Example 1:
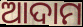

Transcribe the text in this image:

ଆଦାମ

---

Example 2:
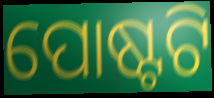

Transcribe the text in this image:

ପୋଷ୍ଟଟି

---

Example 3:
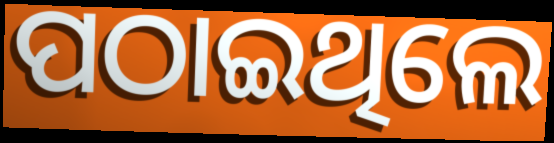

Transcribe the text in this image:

ପଠାଇଥିଲେ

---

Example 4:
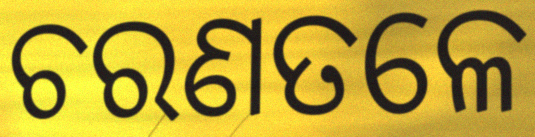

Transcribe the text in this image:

ଚରଣତଳେ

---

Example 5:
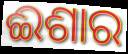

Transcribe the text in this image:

ଈଶାର